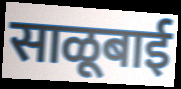
साळूबाई